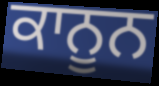
ਕਾਨੂਨ